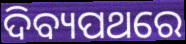
ଦିବ୍ୟପଥରେ